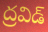
ద్రవిడ్